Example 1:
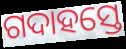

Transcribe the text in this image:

ଗଦାହସ୍ତେ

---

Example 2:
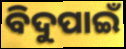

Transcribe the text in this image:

ବିଦୁପାଇଁ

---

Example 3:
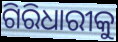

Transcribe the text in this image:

ଗିରିଧାରୀକୁ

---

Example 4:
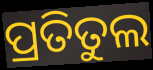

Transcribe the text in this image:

ପ୍ରତିତୁଲ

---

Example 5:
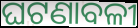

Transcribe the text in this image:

ଘଟଣାବଳୀ